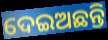
ଦେଇଅଛନ୍ତି